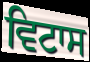
ਵਿਟਾਸ